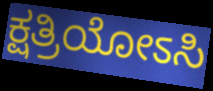
ಕ್ಷತ್ರಿಯೋಽಸಿ